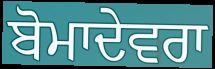
ਬੋਮਾਦੇਵਰਾ